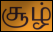
சூழ்